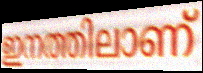
ഇനത്തിലാണ്